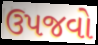
ઉપજવો